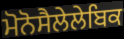
ਮੋਨੋਸੈਲੇਲੇਬਿਕ